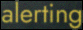
alerting